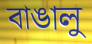
বাঙালু